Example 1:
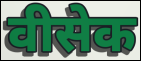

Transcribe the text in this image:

वीसेक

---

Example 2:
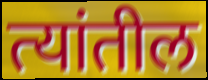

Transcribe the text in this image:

त्‍यांतील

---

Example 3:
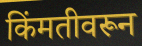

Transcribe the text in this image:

किंमतीवरून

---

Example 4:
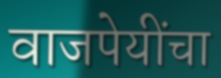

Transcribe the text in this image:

वाजपेयींचा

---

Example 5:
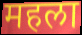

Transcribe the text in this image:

महला